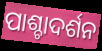
ପାଶ୍ଚାଦର୍ଶନ